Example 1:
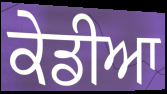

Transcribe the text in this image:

ਕੇਡੀਆ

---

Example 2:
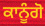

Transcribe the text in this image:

ਕਾਨੂੰਗੋ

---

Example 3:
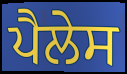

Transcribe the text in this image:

ਪੈਲੇਸ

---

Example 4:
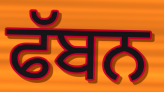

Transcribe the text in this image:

ਫੱਬਨ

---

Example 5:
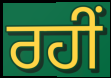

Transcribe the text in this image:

ਰਹੀਂ